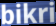
bikri